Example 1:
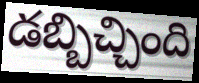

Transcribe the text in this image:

డబ్బిచ్చింది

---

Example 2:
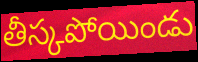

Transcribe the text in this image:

తీస్కపోయిండు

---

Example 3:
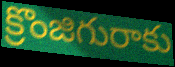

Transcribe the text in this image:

క్రొంజిగురాకు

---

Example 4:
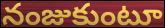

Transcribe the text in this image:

నంజుకుంటూ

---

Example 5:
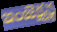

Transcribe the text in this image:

ఇంజెక్షన్ల